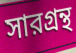
সারগ্রন্থ